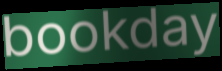
bookday